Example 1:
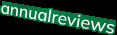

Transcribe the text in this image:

annualreviews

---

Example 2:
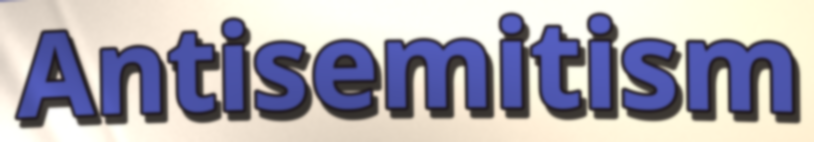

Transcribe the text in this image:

Antisemitism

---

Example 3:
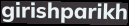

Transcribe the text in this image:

girishparikh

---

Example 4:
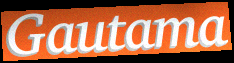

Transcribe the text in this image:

Gautama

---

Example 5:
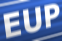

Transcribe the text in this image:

EUP